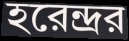
হরেন্দ্রর